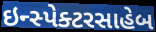
ઇન્સ્પેક્ટરસાહેબ